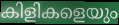
കിളികളെയും